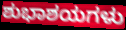
ಶುಭಾಶಯಗಳು